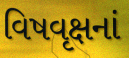
વિષવૃક્ષનાં